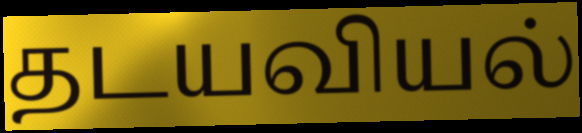
தடயவியல்